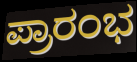
ಪ್ರಾರಂಭ